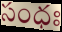
సంధః